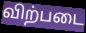
விற்படை